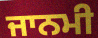
ਜਾਨਮੀ